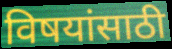
विषयांसाठी